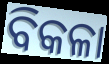
ବିକଳା